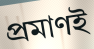
প্রমাণই